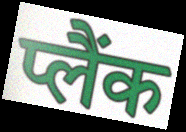
प्लैंक